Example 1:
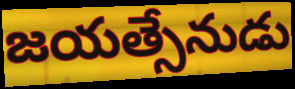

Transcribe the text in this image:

జయత్సేనుడు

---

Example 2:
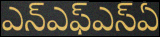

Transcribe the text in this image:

ఎన్ఎఫ్ఎస్ఏ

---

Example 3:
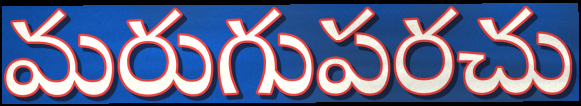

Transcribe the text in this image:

మరుగుపరచు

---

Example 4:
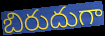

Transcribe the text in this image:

బిరుదుగా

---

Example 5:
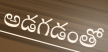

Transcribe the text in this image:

అడగడంతో